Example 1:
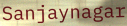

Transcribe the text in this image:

Sanjaynagar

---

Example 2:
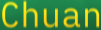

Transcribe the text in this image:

Chuan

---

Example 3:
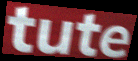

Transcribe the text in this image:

tute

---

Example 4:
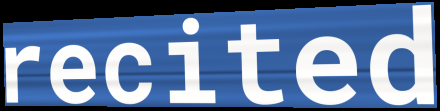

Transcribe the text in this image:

recited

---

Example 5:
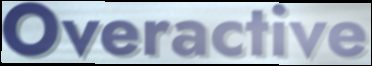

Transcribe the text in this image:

Overactive